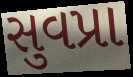
સુવપ્રા